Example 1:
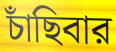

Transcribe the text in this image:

চাঁছিবার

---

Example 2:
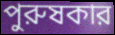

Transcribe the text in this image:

পুরুষকার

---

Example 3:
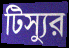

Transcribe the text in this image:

টিস্যুর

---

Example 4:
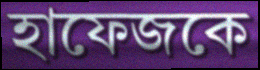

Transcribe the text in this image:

হাফেজকে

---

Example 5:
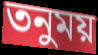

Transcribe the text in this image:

তনুময়